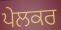
ਪੇਲਕਰ